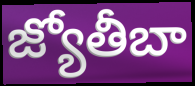
జ్యోతీబా